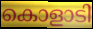
കൊളാടി